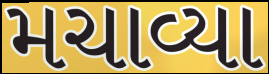
મચાવ્યા